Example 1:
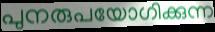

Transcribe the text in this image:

പുനരുപയോഗിക്കുന്ന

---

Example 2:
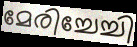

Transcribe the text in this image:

മേരിച്ചേച്ചി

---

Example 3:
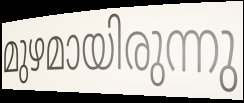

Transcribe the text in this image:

മുഴമായിരുന്നു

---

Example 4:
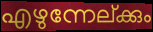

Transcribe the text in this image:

എഴുന്നേല്ക്കും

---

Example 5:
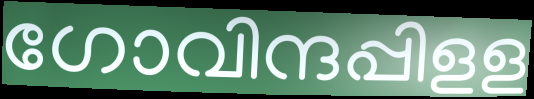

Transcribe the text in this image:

ഗോവിന്ദപ്പിളള